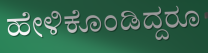
ಹೇಳಿಕೊಂಡಿದ್ದರೂ